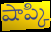
షాప్కి